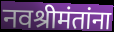
नवश्रीमंतांना